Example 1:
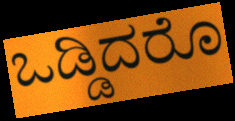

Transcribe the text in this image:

ಒಡ್ಡಿದರೊ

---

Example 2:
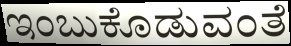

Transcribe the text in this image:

ಇಂಬುಕೊಡುವಂತೆ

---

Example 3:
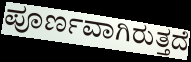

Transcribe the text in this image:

ಪೂರ್ಣವಾಗಿರುತ್ತದೆ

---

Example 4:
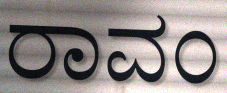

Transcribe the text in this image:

ರಾವಂ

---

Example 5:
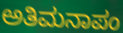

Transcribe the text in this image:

ಅತಿಮನಾಪಂ